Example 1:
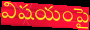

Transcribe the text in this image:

విషయంపై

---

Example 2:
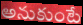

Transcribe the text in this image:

అనుకుంటే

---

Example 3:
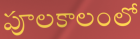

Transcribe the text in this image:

పూలకాలంలో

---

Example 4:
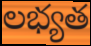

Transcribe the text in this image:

లభ్యత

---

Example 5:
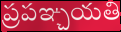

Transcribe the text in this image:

ప్రపఞ్చయతి